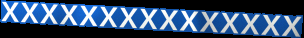
xxxxxxxxxxxxxxx